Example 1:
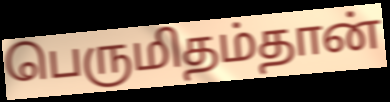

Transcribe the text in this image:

பெருமிதம்தான்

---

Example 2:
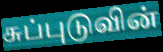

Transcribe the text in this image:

சுப்புடுவின்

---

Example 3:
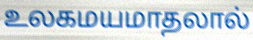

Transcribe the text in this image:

உலகமயமாதலால்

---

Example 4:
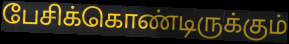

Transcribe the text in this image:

பேசிக்கொண்டிருக்கும்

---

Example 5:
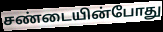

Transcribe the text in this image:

சண்டையின்போது